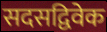
सदसद्विवेक